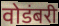
वोडंबरी